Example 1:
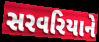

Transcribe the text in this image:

સરવરિયાને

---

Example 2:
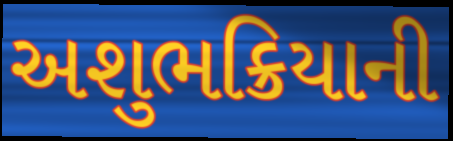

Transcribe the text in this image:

અશુભક્રિયાની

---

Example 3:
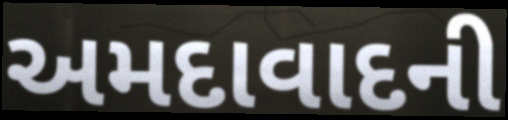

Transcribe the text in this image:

અમદાવાદની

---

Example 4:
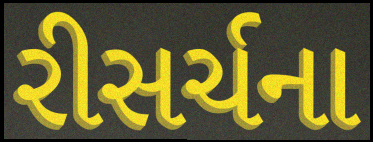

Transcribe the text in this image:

રીસર્ચના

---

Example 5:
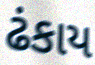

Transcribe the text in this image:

ઢંકાય